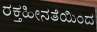
ರಕ್ತಹೀನತೆಯಿಂದ